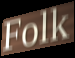
Folk